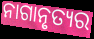
ନାଗାନୃତ୍ୟର